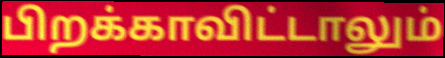
பிறக்காவிட்டாலும்